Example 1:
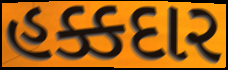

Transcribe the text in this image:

હક્કદાર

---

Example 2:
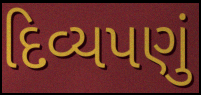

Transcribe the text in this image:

દિવ્યપણું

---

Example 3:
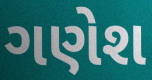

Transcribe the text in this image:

ગણેશ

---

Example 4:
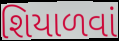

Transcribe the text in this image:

શિયાળવાં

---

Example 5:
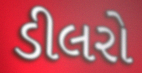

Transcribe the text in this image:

ડીલરો